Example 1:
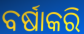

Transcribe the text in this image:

ବର୍ଷାକରି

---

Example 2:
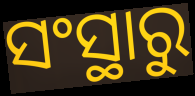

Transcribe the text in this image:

ସଂସ୍ଥାରୁ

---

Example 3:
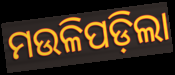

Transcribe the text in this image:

ମଉଳିପଡ଼ିଲା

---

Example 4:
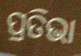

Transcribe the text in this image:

ପ୍ରତିଭା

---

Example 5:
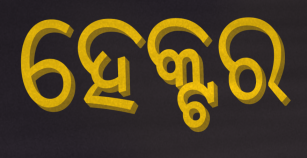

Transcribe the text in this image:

ହେକ୍ଟର